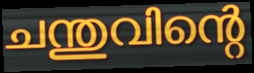
ചന്തുവിന്റെ